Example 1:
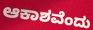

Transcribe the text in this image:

ಆಕಾಶವೆಂದು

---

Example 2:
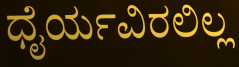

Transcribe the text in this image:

ಧೈರ್ಯವಿರಲಿಲ್ಲ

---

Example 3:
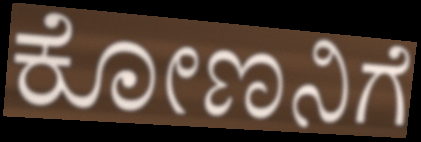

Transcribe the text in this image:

ಕೋಣನಿಗೆ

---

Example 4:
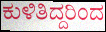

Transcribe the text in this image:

ಕುಳಿತಿದ್ದರಿಂದ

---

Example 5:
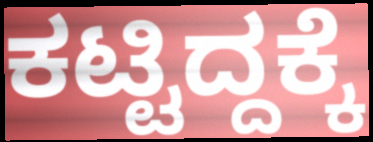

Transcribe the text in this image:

ಕಟ್ಟಿದ್ದಕ್ಕೆ